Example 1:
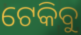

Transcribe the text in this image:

ଟେକିବୁ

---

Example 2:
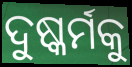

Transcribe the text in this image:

ଦୁଷ୍କର୍ମକୁ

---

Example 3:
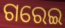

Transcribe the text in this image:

ଗରେଇ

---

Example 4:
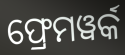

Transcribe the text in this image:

ଫ୍ରେମୱର୍କ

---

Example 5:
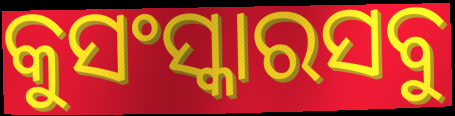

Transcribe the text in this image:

କୁସଂସ୍କାରସବୁ